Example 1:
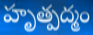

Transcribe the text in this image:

హృత్పద్మం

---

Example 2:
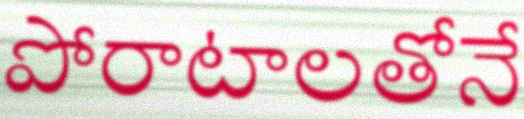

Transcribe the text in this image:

పోరాటాలతోనే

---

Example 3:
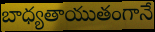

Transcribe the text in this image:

బాధ్యతాయుతంగానే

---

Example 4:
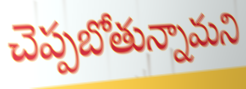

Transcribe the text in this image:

చెప్పబోతున్నామని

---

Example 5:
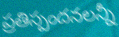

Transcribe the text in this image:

ప్రతిస్పందనలన్నీ